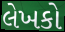
લેખકો